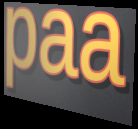
paa